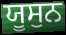
ਯੂਸੁਨ